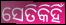
ସେତିକିହିଁ